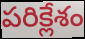
పరిక్లేశం